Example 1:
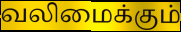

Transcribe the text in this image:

வலிமைக்கும்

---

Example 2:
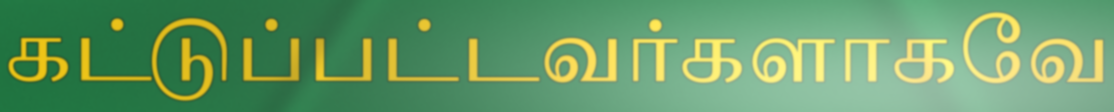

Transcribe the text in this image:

கட்டுப்பட்டவர்களாகவே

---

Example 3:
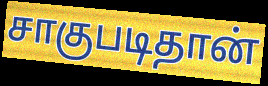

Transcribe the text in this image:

சாகுபடிதான்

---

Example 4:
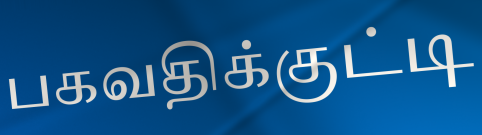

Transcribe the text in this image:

பகவதிக்குட்டி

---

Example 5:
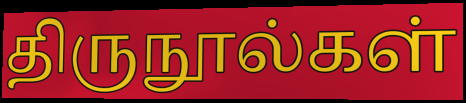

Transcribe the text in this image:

திருநூல்கள்